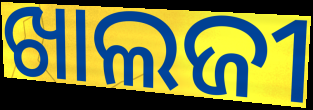
ଖାଲଜୀ